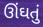
ઊંઘતું